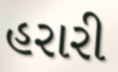
હરારી